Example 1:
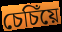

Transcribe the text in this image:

চেচিঁয়ে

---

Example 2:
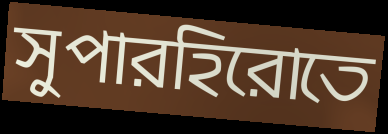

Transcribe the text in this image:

সুপারহিরোতে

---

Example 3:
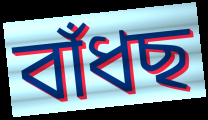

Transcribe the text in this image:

বাঁধছ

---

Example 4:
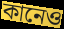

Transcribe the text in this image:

কানেও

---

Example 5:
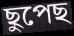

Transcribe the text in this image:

ছুপেছ